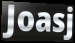
Joasj